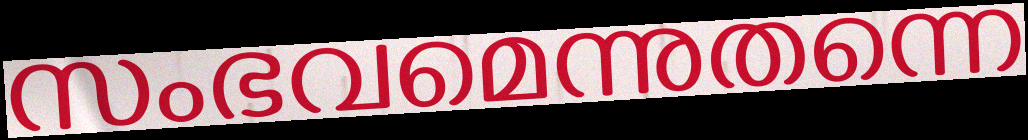
സംഭവമെന്നുതന്നെ